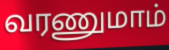
வரணுமாம்